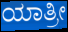
ಯಾತ್ರೀ